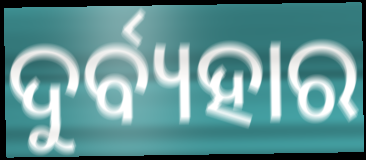
ଦୁର୍ବ୍ୟହାର